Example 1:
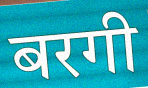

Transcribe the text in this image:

बरगी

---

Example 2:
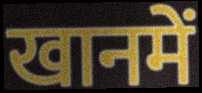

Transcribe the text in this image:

खानमें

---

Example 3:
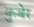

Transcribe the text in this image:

कुबेर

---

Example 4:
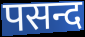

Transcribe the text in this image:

पसन्द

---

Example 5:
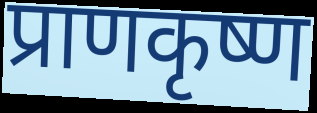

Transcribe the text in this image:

प्राणकृष्ण